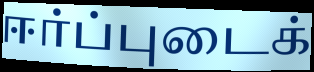
ஈர்ப்புடைக்